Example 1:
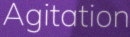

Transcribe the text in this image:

Agitation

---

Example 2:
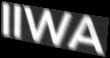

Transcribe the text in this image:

IIWA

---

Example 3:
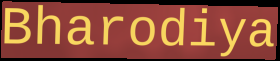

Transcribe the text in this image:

Bharodiya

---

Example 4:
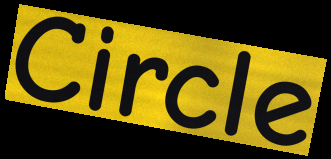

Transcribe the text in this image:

Circle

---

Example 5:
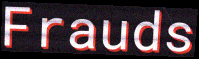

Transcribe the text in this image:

Frauds